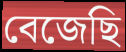
বেজেছি